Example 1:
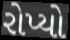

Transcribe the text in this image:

રોપ્યો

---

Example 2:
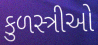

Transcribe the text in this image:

કુળસ્ત્રીઓ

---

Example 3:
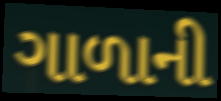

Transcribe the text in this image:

ગાળાની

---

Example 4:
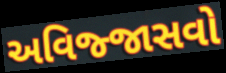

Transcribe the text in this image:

અવિજ્જાસવો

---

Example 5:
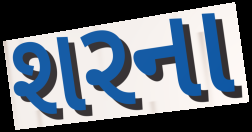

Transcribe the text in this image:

શરના